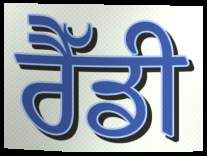
ਰੈੱਡੀ